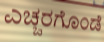
ಎಚ್ಚರಗೊಂಡೆ